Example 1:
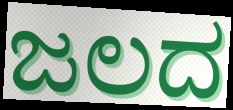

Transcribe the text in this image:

ಜಲದ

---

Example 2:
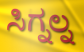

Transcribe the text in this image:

ಸಿಗ್ನಲ್ನ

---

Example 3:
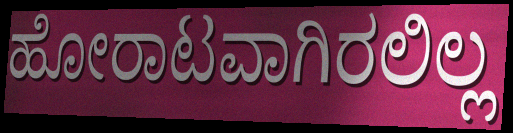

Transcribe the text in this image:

ಹೋರಾಟವಾಗಿರಲಿಲ್ಲ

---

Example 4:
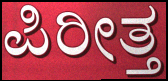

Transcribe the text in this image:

ಪಿರೀತ್ತ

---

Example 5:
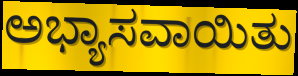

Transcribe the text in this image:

ಅಭ್ಯಾಸವಾಯಿತು